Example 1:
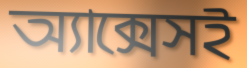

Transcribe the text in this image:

অ্যাক্সেসই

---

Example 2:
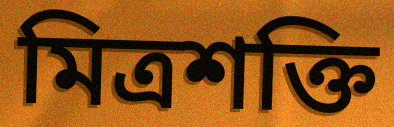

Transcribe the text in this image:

মিত্রশক্তি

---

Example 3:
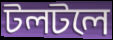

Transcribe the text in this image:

টলটলে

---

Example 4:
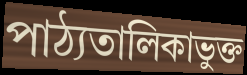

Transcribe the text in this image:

পাঠ্যতালিকাভুক্ত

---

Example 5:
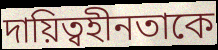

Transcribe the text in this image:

দায়িত্বহীনতাকে